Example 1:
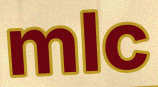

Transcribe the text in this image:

mlc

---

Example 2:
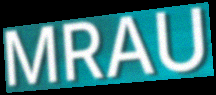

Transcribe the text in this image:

MRAU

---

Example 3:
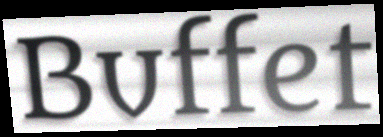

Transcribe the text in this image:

Buffet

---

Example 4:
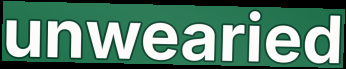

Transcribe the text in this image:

unwearied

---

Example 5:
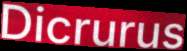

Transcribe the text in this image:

Dicrurus